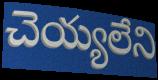
చెయ్యలేని